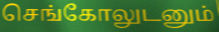
செங்கோலுடனும்